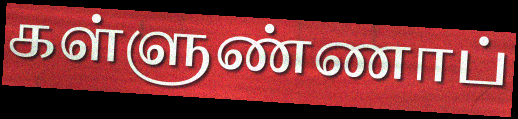
கள்ளுண்ணாப்